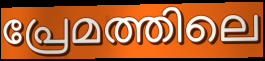
പ്രേമത്തിലെ